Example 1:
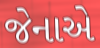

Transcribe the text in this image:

જેનાએ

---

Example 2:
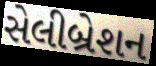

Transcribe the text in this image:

સેલીબ્રેશન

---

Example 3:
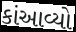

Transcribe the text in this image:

કાંઆવ્યો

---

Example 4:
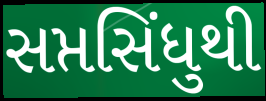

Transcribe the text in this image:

સપ્તસિંધુથી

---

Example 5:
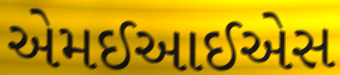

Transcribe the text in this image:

એમઈઆઈએસ